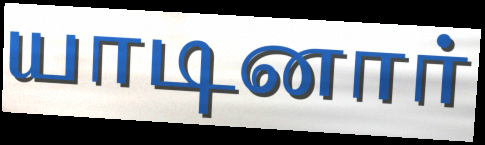
யாடினார்